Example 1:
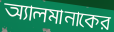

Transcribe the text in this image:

অ্যালমানাকের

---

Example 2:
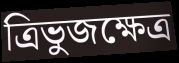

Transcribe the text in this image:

ত্রিভুজক্ষেত্র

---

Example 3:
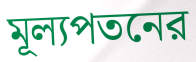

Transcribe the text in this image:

মূল্যপতনের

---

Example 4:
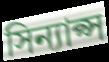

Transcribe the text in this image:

সিন্যাপ্স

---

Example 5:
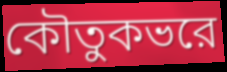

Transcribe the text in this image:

কৌতুকভরে